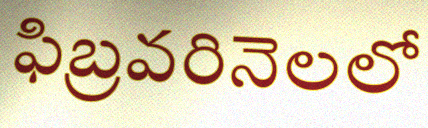
ఫిబ్రవరినెలలో